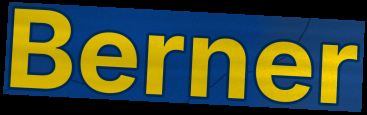
Berner